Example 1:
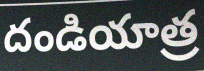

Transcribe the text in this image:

దండియాత్ర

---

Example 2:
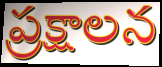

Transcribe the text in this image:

ప్రక్షాలన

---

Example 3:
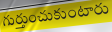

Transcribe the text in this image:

గుర్తుంచుకుంటారు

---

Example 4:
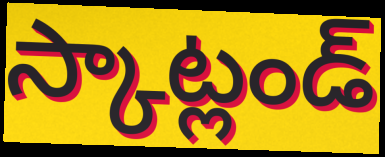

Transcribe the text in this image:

స్కాట్లండ్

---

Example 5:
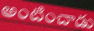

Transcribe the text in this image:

అంటించాడు